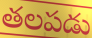
తలపడు